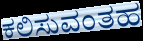
ಕಲಿಸುವಂತಹ